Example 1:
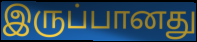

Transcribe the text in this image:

இருப்பானது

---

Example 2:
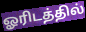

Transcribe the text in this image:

ஓரிடத்தில்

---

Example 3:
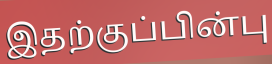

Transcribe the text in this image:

இதற்குப்பின்பு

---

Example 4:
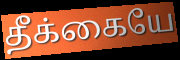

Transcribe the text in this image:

தீக்கையே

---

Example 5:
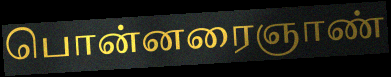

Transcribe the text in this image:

பொன்னரைஞாண்